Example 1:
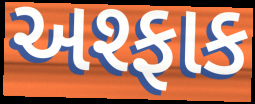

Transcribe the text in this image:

અશ્ફાક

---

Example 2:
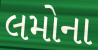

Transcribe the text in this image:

લમોના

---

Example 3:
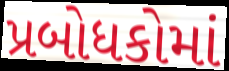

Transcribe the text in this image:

પ્રબોધકોમાં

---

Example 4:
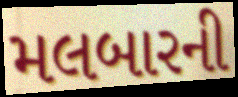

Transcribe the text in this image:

મલબારની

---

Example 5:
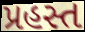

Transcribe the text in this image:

પ્રહસ્ત